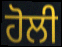
ਹੋਲੀ